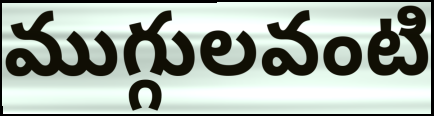
ముగ్గులవంటి